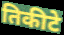
तिकीटे